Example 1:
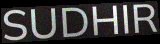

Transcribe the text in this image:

SUDHIR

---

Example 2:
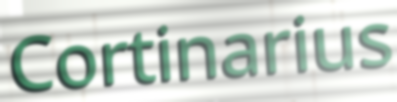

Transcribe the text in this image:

Cortinarius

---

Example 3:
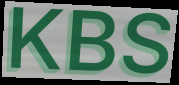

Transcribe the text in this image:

KBS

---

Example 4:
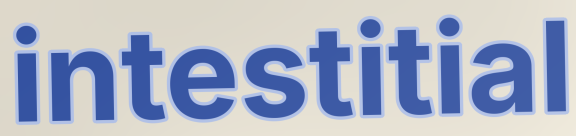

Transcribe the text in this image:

intestitial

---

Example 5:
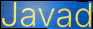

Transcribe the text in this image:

Javad